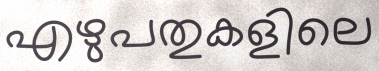
എഴുപതുകളിലെ